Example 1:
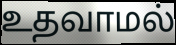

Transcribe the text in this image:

உதவாமல்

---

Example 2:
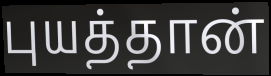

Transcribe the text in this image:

புயத்தான்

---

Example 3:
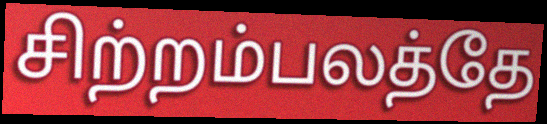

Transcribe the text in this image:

சிற்றம்பலத்தே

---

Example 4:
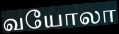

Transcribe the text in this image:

வயோலா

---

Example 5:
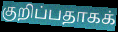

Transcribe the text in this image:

குறிப்பதாகக்